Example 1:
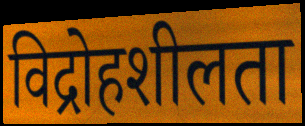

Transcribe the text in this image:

विद्रोहशीलता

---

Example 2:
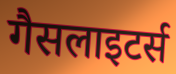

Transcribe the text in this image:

गैसलाइटर्स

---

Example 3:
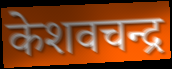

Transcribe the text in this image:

केशवचन्द्र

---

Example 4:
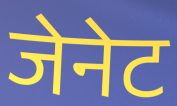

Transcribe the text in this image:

जेनेट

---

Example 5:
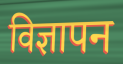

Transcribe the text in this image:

विज्ञापन